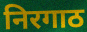
निरगाठ